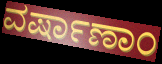
ವರ್ಷಾಣಾಂ